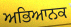
ਅਭਿਆਨਕ